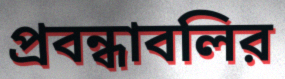
প্রবন্ধাবলির